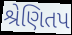
શ્રેણિતપ